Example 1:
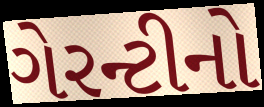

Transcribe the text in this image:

ગેરન્ટીનો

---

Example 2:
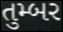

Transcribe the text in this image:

તુમ્બર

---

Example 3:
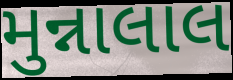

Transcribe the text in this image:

મુન્નાલાલ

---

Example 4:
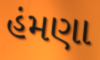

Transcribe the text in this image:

હંમણા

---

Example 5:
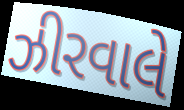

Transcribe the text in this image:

ઝીરવાલે